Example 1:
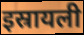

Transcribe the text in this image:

इस्रायली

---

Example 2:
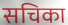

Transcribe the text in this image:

सचिका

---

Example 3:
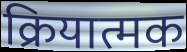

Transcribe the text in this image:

क्रियात्‍मक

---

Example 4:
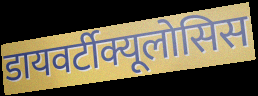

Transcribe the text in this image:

डायवर्टीक्यूलोसिस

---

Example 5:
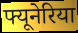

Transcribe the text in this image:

फ्यूनेरिया